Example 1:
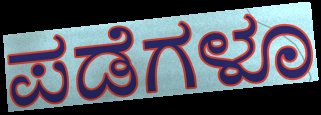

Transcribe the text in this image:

ಪಡೆಗಳೂ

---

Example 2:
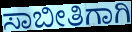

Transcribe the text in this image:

ಸಾಬೀತಿಗಾಗಿ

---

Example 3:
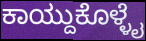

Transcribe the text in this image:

ಕಾಯ್ದುಕೊಳ್ಳೈ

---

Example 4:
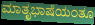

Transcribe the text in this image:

ಮಾತೃಭಾಷೆಯಂತೂ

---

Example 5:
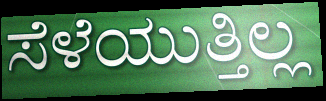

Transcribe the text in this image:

ಸೆಳೆಯುತ್ತಿಲ್ಲ